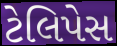
ટેલિપેસ